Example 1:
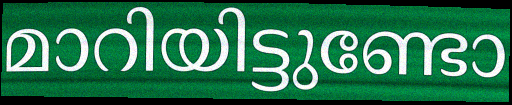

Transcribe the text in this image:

മാറിയിട്ടുണ്ടോ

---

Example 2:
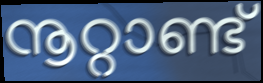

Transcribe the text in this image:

നൂറ്റാണ്ട്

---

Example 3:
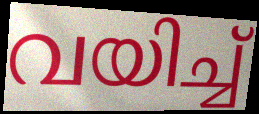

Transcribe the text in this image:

വയിച്ച്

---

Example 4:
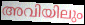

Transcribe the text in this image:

അവിയിലും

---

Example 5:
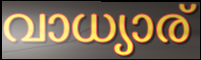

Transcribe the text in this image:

വാധ്യാര്